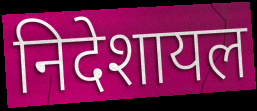
निदेशायल